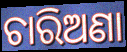
ଚାରିଅଣା